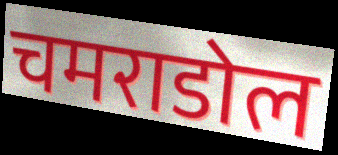
चमराडोल